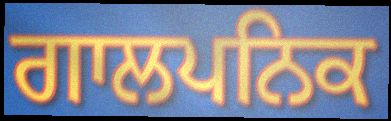
ਗਾਲਪਨਿਕ